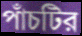
পাঁচটির